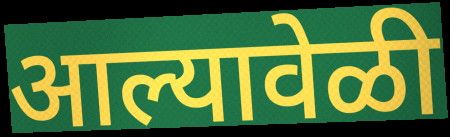
आल्यावेळी